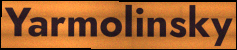
Yarmolinsky